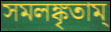
সমলঙ্কৃতাম্